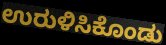
ಉರುಳಿಸಿಕೊಂಡು